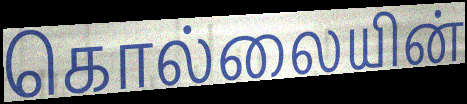
கொல்லையின்